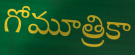
గోమూత్రికా